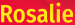
Rosalie